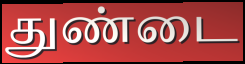
துண்டை